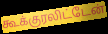
கூக்குரலிட்டேன்